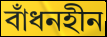
বাঁধনহীন